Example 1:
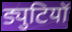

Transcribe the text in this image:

ड्युटियों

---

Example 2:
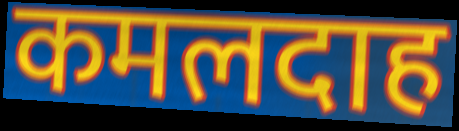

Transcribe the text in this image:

कमलदाह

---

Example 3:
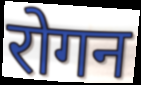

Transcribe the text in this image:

रोगन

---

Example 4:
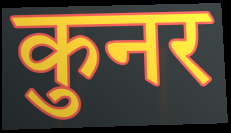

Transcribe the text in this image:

कुनर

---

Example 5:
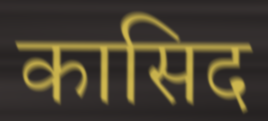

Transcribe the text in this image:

कासिद